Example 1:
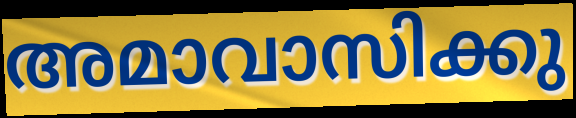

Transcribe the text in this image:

അമാവാസിക്കു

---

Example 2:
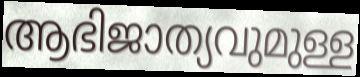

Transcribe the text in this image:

ആഭിജാത്യവുമുള്ള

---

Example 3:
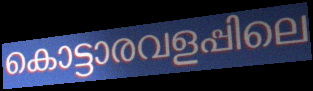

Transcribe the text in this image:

കൊട്ടാരവളപ്പിലെ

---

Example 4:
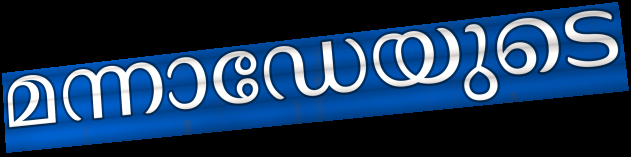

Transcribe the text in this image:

മന്നാഡേയുടെ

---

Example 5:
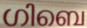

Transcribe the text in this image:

ഗിബെ